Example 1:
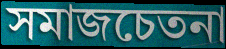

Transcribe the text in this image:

সমাজচেতনা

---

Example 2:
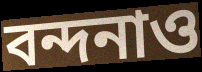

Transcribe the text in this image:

বন্দনাও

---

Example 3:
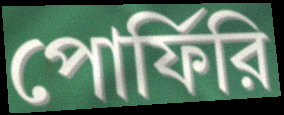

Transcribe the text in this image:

পোর্ফিরি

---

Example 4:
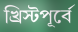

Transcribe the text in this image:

খ্রিস্টপূর্বে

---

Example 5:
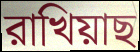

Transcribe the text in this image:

রাখিয়াছ